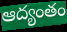
ఆద్యంతం